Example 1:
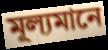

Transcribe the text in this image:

মূল্যমানে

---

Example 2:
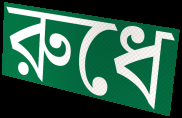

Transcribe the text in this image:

রুধে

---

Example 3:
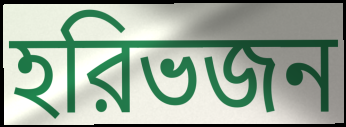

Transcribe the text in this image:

হরিভজন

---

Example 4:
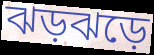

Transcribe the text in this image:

ঝড়ঝড়ে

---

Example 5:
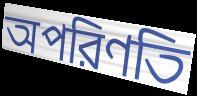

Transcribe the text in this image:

অপরিণতি